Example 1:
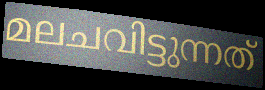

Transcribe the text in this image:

മലചവിട്ടുന്നത്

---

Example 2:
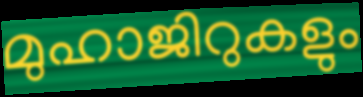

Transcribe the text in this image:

മുഹാജിറുകളും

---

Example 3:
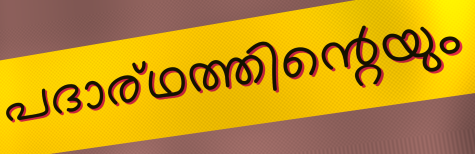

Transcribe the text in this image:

പദാര്ഥത്തിന്റെയും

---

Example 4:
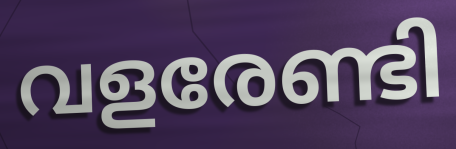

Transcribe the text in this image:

വളരേണ്ടി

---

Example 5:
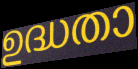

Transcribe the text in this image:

ഉദ്ധതാ